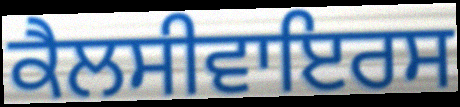
ਕੈਲਸੀਵਾਇਰਸ